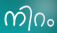
നിറം